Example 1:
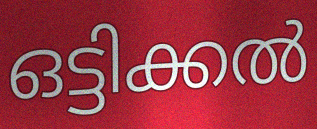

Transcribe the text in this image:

ഒട്ടിക്കൽ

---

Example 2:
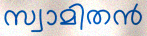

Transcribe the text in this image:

സ്വാമിതൻ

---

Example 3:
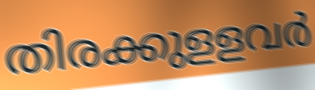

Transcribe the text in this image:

തിരക്കുളളവർ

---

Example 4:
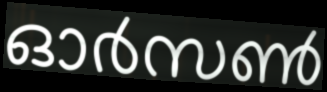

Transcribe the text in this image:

ഓർസൺ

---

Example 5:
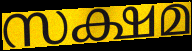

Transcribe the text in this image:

സക്ഷമ